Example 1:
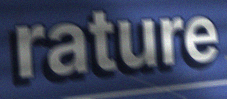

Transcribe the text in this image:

rature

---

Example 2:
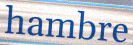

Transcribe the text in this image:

hambre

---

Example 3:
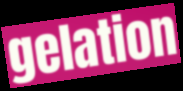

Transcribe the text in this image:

gelation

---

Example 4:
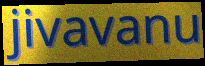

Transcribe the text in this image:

jivavanu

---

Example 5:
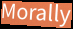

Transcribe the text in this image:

Morally